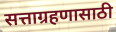
सत्ताग्रहणासाठी